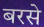
बरसे